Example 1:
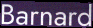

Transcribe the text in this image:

Barnard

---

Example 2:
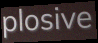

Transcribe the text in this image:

plosive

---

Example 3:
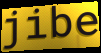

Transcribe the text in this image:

jibe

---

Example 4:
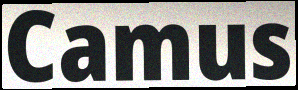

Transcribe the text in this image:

Camus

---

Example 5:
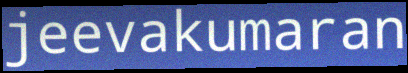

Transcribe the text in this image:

jeevakumaran